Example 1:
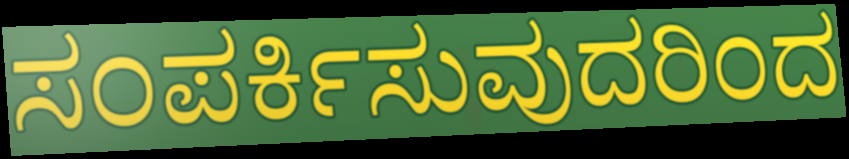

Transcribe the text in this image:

ಸಂಪರ್ಕಿಸುವುದರಿಂದ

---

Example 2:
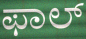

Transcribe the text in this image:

ಫಾಲ್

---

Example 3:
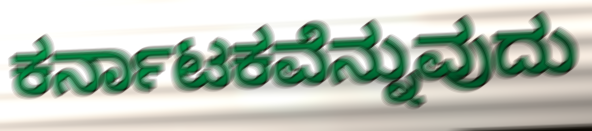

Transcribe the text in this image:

ಕರ್ನಾಟಕವೆನ್ನುವುದು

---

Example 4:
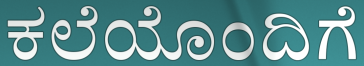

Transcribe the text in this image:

ಕಲೆಯೊಂದಿಗೆ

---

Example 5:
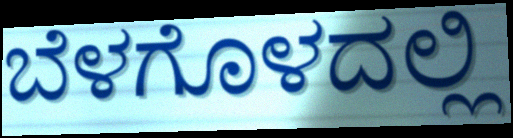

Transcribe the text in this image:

ಬೆಳಗೊಳದಲ್ಲಿ